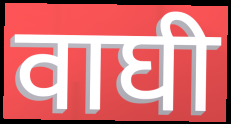
वाघी